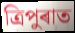
ত্ৰিপুৰাত